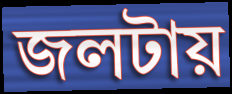
জলটায়